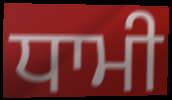
ਧਾਮੀ